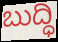
ಬುದ್ಧಿ